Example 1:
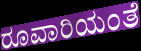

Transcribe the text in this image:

ರೂವಾರಿಯಂತೆ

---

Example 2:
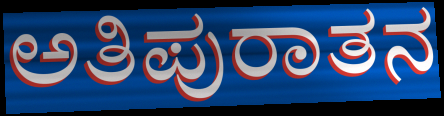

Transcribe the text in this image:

ಅತಿಪುರಾತನ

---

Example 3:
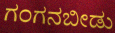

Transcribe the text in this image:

ಗಂಗನಬೀಡು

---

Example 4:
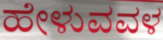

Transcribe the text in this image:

ಹೇಳುವವಳ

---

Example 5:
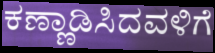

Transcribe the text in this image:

ಕಣ್ಣಾಡಿಸಿದವಳಿಗೆ